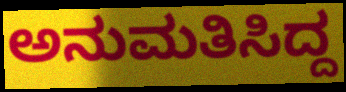
ಅನುಮತಿಸಿದ್ದ